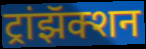
ट्रांझॅक्शन